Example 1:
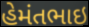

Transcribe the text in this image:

હેમંતભાઇ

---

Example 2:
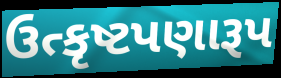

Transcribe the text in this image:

ઉત્કૃષ્ટપણારૂપ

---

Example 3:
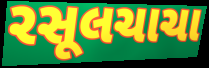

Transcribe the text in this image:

રસૂલચાચા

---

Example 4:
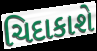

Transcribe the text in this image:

ચિદાકાશે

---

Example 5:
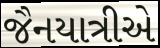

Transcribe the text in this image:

જૈનયાત્રીએ